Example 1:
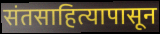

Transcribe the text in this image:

संतसाहित्यापासून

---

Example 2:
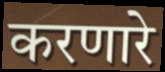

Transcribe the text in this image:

करणारे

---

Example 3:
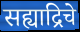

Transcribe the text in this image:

सह्याद्रिचे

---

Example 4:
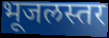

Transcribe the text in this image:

भूजलस्तर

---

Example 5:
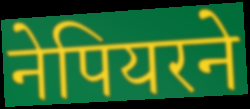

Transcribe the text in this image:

नेपियरने